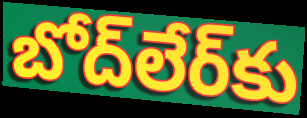
బోద్‌లేర్‌కు